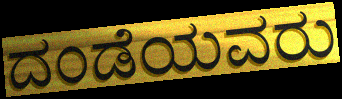
ದಂಡೆಯವರು